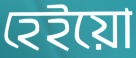
হেইয়ো